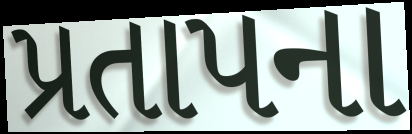
પ્રતાપના